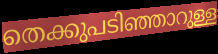
തെക്കുപടിഞ്ഞാറുള്ള